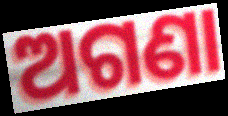
ଅଗଣା